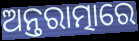
ଅନ୍ତରାତ୍ମାରେ